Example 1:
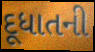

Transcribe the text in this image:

દૂધાતની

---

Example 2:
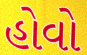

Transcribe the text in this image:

હોવો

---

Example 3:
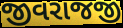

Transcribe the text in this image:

જીવરાજજી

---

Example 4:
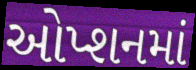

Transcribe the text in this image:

ઓપ્શનમાં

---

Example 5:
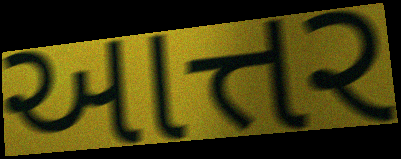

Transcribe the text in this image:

આત્તર